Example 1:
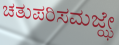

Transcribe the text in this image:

ಚತುಪರಿಸಮಜ್ಝೇ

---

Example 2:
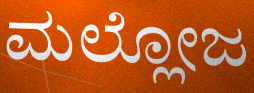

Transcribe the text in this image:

ಮಲ್ಲೋಜ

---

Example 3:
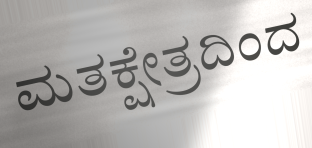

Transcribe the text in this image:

ಮತಕ್ಷೇತ್ರದಿಂದ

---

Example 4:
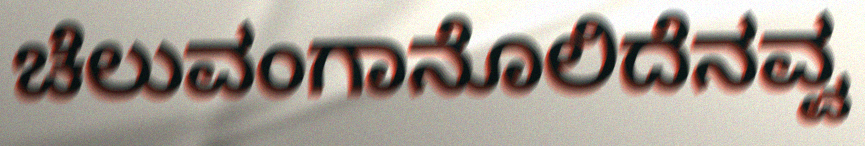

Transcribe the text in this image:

ಚೆಲುವಂಗಾನೊಲಿದೆನವ್ವ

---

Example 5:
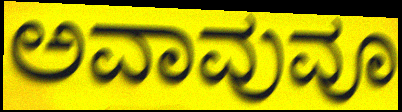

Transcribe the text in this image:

ಅವಾವುವೂ